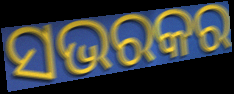
ସଭରକର